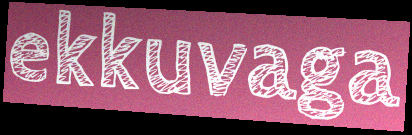
ekkuvaga